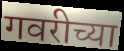
गवरीच्या